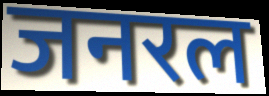
जनरल